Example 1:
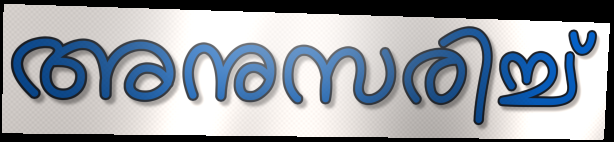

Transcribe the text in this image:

അനുസരിച്ച്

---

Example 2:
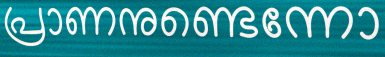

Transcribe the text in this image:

പ്രാണനുണ്ടെന്നോ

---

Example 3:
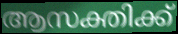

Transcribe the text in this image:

ആസക്തിക്ക്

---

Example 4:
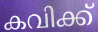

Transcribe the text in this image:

കവിക്ക്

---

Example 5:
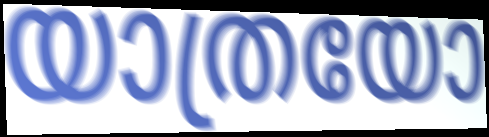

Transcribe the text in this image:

യാത്രയോ